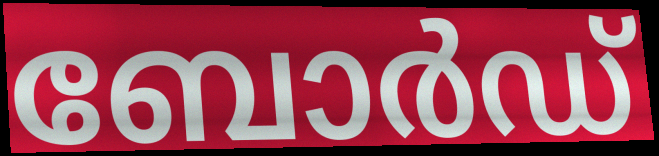
ബോർഡ്